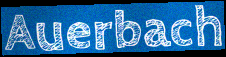
Auerbach